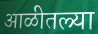
आळीतल्या